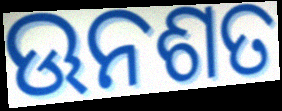
ଊନଶତ